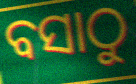
ବସାଠୁ